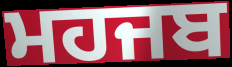
ਮਹਜਬ